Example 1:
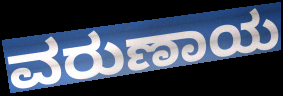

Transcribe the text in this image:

ವರುಣಾಯ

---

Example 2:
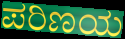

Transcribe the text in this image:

ಪರಿಣಯ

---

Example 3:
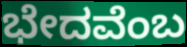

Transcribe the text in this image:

ಭೇದವೆಂಬ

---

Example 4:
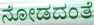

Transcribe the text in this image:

ನೋಡದಂತೆ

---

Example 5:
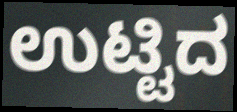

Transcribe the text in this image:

ಉಟ್ಟಿದ